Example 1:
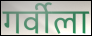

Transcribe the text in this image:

गर्वीला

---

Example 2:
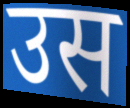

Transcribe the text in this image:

उस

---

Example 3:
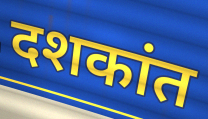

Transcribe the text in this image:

दशकांत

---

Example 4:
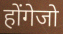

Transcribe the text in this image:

होंगेजो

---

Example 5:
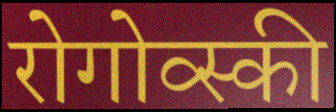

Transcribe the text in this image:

रोगोव्स्की